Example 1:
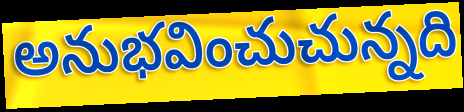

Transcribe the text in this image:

అనుభవించుచున్నది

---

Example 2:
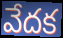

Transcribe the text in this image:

వేదక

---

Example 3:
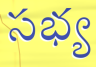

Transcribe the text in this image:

సభ్య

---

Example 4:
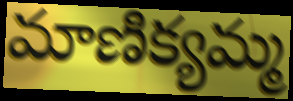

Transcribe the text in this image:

మాణిక్యమ్మ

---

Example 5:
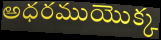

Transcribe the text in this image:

అధరముయొక్క